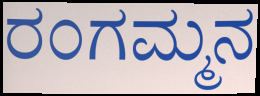
ರಂಗಮ್ಮನ